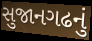
સુજાનગઢનું